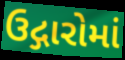
ઉદ્ગારોમાં